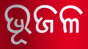
ଭୂଜଳ